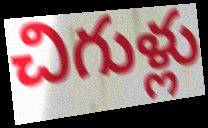
చిగుళ్లు